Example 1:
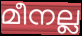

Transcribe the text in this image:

മീനല്ല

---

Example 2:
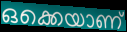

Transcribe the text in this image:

ഒക്കെയാണ്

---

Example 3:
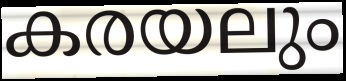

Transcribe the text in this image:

കരയലും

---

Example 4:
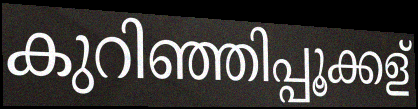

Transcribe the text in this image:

കുറിഞ്ഞിപ്പൂക്കള്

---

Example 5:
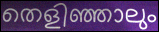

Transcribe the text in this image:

തെളിഞ്ഞാലും